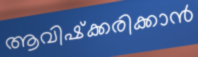
ആവിഷ്‌ക്കരിക്കാൻ